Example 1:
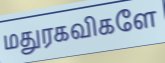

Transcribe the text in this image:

மதுரகவிகளே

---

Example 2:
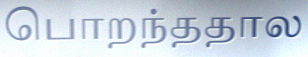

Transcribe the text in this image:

பொறந்ததால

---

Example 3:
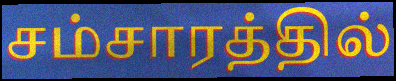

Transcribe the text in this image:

சம்சாரத்தில்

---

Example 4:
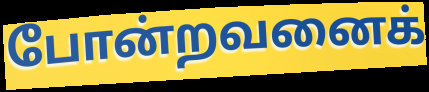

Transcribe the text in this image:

போன்றவனைக்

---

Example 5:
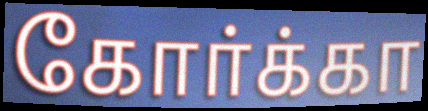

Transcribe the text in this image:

கோர்க்கா